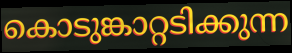
കൊടുങ്കാറ്റടിക്കുന്ന